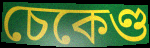
চেকেণ্ড